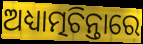
ଅଧ୍ୟାତ୍ମଚିନ୍ତାରେ